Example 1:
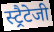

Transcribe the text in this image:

स्ट्रैटेजी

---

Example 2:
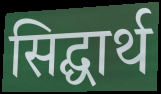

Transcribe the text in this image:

सिद्घार्थ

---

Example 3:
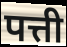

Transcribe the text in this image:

पत्ती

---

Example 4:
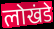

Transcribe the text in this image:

लोखंडे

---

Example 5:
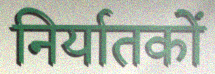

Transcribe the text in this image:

निर्यातकों